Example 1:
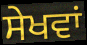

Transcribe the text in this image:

ਸੇਖਵਾਂ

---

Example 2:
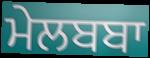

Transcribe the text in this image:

ਮੇਲਬਬਾ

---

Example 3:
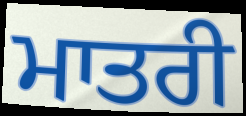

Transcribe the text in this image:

ਮਾਤਰੀ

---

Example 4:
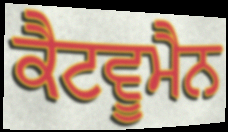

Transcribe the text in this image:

ਕੈਟਵੂਮੈਨ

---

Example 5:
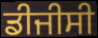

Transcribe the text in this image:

ਡੀਜੀਸੀ